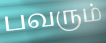
பவரும்